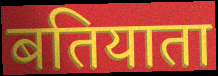
बतियाता